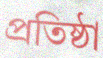
প্রতিষ্ঠা